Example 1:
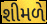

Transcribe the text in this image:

શીમળે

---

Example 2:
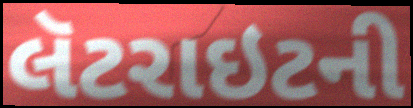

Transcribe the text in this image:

લૅટરાઇટની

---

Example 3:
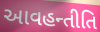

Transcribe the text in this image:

આવહન્તીતિ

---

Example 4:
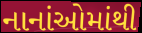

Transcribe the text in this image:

નાનાંઓમાંથી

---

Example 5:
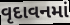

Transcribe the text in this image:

વૃદાવનમાં